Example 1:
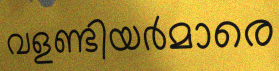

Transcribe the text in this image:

വളണ്ടിയർമാരെ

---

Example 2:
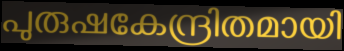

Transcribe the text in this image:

പുരുഷകേന്ദ്രിതമായി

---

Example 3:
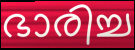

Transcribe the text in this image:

ഭാരിച്ച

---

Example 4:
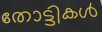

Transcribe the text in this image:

തോട്ടികൾ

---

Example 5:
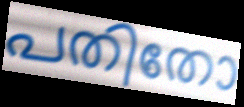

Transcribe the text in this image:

പതിതോ